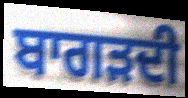
ਬਾਗੜਦੀ